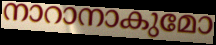
നാറാനാകുമോ